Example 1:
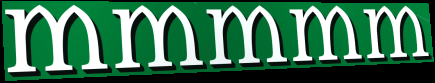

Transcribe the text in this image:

mmmmm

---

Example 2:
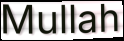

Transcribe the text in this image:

Mullah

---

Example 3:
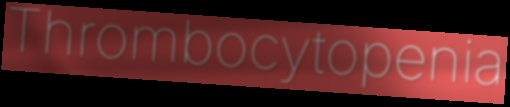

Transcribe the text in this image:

Thrombocytopenia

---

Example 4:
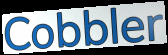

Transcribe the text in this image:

Cobbler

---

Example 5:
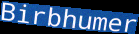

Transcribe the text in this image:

Birbhumer